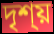
দৃশ্য়